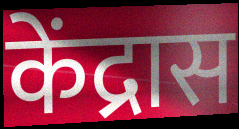
केंद्रास